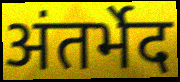
अंतर्भेद